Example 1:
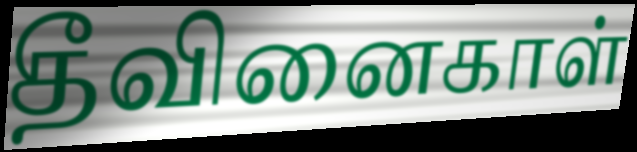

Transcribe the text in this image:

தீவினைகாள்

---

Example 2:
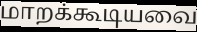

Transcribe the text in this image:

மாறக்கூடியவை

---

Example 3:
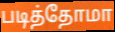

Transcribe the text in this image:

படித்தோமா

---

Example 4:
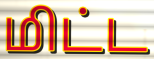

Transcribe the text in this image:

மிட்ட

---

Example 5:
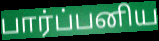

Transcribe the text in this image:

பார்ப்பனிய